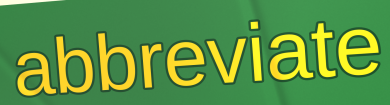
abbreviate